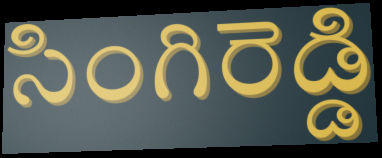
సింగిరెడ్డి